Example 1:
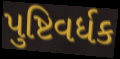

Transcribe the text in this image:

પુષ્ટિવર્ધક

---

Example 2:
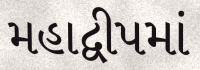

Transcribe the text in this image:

મહાદ્વીપમાં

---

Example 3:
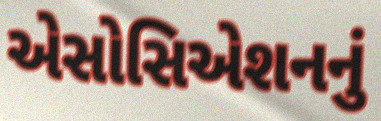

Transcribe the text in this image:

એસોસિએશનનું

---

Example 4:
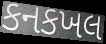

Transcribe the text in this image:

કનકખલ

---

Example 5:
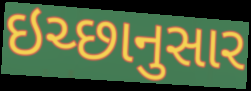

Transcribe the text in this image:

ઇચ્છાનુસાર